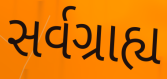
સર્વગ્રાહ્ય